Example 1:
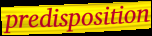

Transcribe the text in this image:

predisposition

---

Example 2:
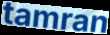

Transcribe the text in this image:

tamran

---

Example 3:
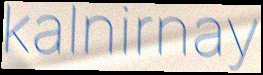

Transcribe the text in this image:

kalnirnay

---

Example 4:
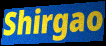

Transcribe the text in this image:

Shirgao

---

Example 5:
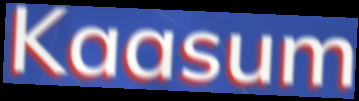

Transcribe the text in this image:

Kaasum